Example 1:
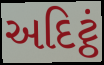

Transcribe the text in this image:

અદિટ્ઠં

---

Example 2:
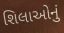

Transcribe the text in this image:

શિલાઓનું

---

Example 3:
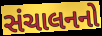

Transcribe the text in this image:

સંચાલનનો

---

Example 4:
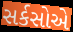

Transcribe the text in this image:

સર્કસોએ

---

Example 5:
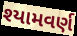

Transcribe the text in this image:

શ્યામવર્ણ